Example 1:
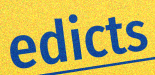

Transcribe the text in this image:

edicts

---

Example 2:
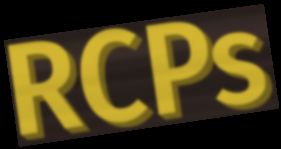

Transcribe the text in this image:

RCPs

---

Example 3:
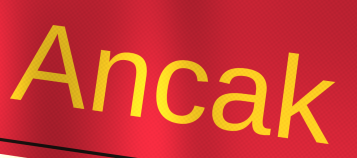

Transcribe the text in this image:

Ancak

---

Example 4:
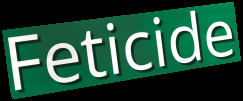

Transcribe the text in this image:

Feticide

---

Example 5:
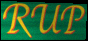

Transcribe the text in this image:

RUP